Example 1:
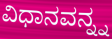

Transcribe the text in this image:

ವಿಧಾನವನ್ನ್ನ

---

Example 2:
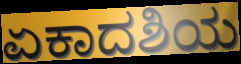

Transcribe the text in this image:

ಏಕಾದಶಿಯ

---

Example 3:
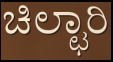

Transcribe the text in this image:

ಚಿಲ್ಟಾರಿ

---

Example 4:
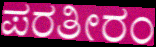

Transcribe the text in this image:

ಪರತೀರಂ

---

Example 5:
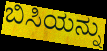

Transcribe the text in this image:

ಬಿಸಿಯನ್ನು